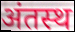
अंतस्थ